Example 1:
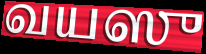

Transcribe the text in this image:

வயஸு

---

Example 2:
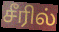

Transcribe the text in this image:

சீரில்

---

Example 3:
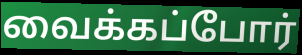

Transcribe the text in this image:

வைக்கப்போர்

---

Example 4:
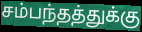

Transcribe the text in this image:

சம்பந்தத்துக்கு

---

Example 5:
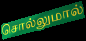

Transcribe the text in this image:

சொல்லுமால்